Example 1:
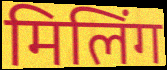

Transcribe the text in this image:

मिलिंग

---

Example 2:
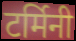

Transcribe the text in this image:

टर्मिनी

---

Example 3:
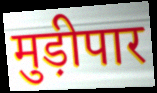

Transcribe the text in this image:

मुड़ीपार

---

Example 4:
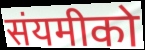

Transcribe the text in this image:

संयमीको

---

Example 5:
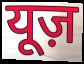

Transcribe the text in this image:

यूज़